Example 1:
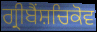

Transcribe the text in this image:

ਗ੍ਰੀਬੈਂਸ਼ਚਿਕੋਵ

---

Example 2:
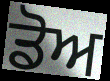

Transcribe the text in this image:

ਡੋਅ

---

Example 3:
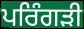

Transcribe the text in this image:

ਪਰਿੰਗੜੀ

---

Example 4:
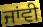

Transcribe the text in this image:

ਜਾਂਵੀ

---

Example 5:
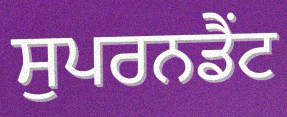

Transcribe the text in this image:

ਸੁਪਰਨਡੈਂਟ